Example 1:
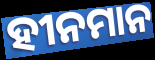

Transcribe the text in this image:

ହୀନମାନ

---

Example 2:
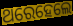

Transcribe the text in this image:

ଥରେହେଲେ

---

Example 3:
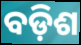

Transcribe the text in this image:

ବଡ଼ିଶ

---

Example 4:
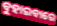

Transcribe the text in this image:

ବୁହାଇବାରେ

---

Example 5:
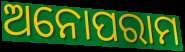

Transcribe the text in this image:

ଅନୋପରାମ